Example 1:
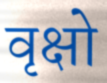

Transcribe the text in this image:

वृक्षो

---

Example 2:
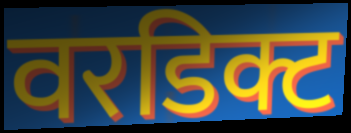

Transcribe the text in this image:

वरडिक्ट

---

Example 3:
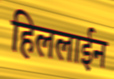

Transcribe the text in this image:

हिललाईन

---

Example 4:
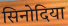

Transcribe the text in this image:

सिनोदिया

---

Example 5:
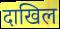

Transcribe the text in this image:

दाखिल